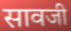
सावजी